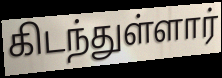
கிடந்துள்ளார்